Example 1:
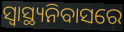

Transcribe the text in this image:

ସ୍ଵାସ୍ଥ୍ୟନିବାସରେ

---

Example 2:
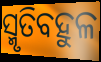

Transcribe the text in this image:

ସ୍ମୃତିବହୁଳ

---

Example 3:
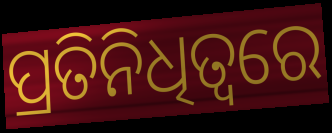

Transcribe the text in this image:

ପ୍ରତିନିଧିତ୍ବରେ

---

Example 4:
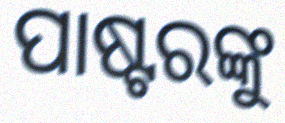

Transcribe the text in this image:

ପାଷ୍ଟରଙ୍କୁ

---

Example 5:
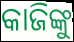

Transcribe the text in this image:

କାଜିଙ୍କୁ